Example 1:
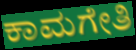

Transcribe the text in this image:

ಕಾಮಗೇತಿ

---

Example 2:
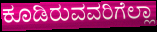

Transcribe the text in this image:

ಕೂಡಿರುವವರಿಗೆಲ್ಲಾ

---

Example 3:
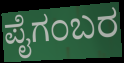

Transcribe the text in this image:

ಪೈಗಂಬರ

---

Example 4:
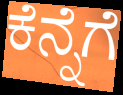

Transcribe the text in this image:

ಕೆನ್ನೆಗೆ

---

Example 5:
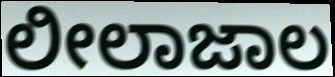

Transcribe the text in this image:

ಲೀಲಾಜಾಲ